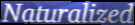
Naturalized